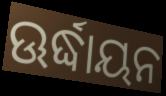
ଊର୍ଦ୍ଧାୟନ